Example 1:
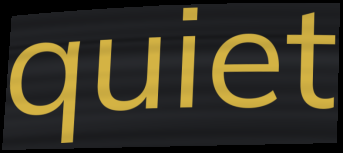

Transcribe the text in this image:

quiet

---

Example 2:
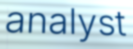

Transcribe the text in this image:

analyst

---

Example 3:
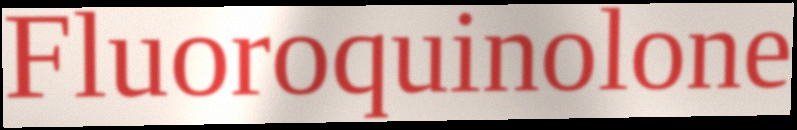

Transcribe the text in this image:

Fluoroquinolone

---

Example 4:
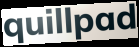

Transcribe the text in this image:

quillpad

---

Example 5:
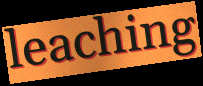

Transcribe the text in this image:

leaching